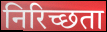
निरिच्छता